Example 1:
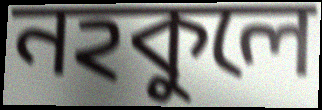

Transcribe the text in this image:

নহকুলে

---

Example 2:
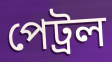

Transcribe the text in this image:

পেট্ৰল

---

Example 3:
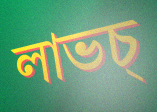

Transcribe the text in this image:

লাভচ্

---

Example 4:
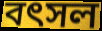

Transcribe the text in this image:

বৎসল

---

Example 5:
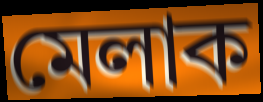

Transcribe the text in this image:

মেলাক